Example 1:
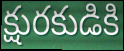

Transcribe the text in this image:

క్షురకుడికి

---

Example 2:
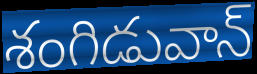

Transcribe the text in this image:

శంగిడువాన్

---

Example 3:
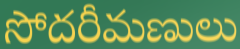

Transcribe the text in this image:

సోదరీమణులు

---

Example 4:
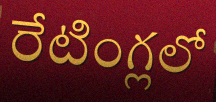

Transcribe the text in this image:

రేటింగ్లలో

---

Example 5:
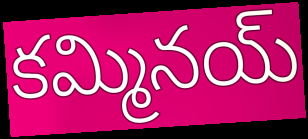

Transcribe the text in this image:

కమ్మినయ్